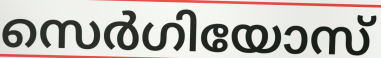
സെർഗിയോസ്